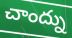
చాంద్ను